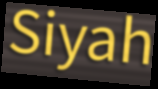
Siyah